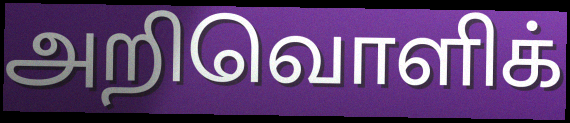
அறிவொளிக்